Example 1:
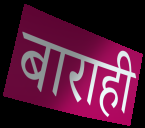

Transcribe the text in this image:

बाराही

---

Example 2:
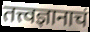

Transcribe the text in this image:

तत्त्वज्ञानाचं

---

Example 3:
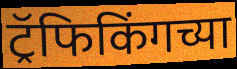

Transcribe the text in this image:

ट्रॅफिकिंगच्या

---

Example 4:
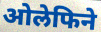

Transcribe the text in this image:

ओलेफिने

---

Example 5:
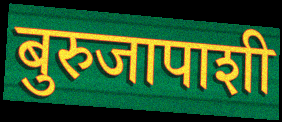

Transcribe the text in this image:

बुरुजापाशी